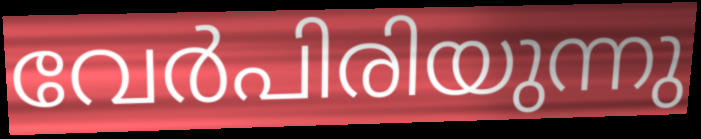
വേർപിരിയുന്നു